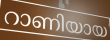
റാണിയായ